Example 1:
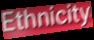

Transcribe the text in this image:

Ethnicity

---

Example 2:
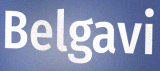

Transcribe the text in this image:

Belgavi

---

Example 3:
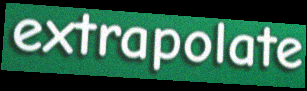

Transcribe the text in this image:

extrapolate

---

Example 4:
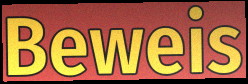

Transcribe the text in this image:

Beweis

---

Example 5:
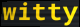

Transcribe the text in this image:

witty